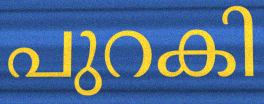
പുറകി